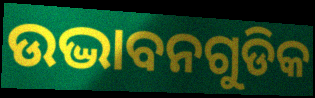
ଉଦ୍ଭାବନଗୁଡିକ